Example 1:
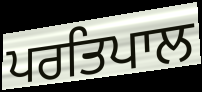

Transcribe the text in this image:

ਪਰਤਿਪਾਲ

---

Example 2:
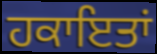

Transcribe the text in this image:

ਹਕਾਇਤਾਂ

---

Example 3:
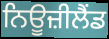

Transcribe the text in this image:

ਨਿਊਜ਼ੀਲੈੰਡ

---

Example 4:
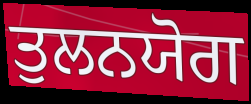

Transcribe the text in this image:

ਤੁਲਨਯੋਗ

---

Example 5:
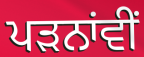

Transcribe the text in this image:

ਪੜਨਾਂਵੀਂ